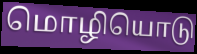
மொழியொடு